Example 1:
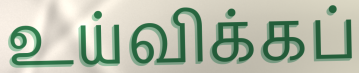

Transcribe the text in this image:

உய்விக்கப்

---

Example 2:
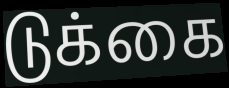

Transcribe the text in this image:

டுக்கை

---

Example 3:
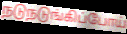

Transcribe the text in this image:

நடுநடுங்கிப்போய்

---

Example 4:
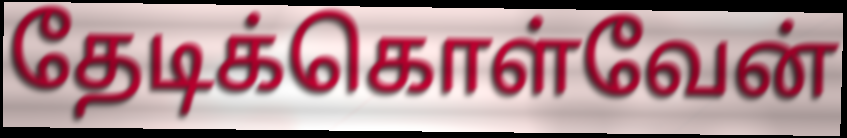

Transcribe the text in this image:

தேடிக்கொள்வேன்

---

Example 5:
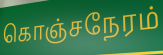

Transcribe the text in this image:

கொஞ்சநேரம்